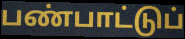
பண்பாட்டுப்